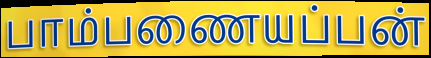
பாம்பணையப்பன்